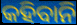
କହିବାନି